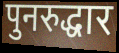
पुनरुद्धार